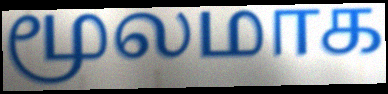
மூலமாக